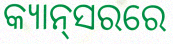
କ୍ୟାନ୍‌ସରରେ